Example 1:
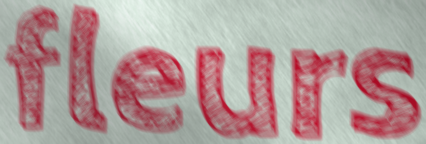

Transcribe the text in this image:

fleurs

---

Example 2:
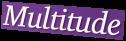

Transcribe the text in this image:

Multitude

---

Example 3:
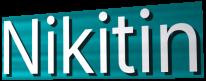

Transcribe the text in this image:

Nikitin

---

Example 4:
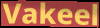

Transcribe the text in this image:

Vakeel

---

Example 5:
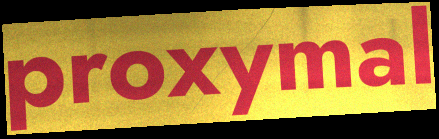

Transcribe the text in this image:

proxymal